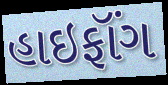
હાઇફૉંગ